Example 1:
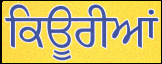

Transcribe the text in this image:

ਕਿਊਰੀਆਂ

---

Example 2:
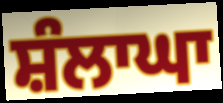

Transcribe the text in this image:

ਸ਼ੰਲਾਘਾ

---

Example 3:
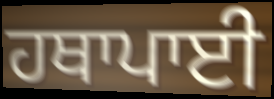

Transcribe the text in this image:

ਹਥਾਪਾਈ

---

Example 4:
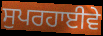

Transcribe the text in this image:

ਸੁਪਰਹਾਈਵੇ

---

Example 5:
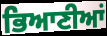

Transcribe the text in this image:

ਭਿਆਣੀਆਂ